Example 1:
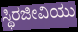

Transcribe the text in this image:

ಸ್ಥಿರಜೀವಿಯು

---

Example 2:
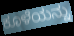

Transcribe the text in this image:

ಕೂಳೆಯನ್ನು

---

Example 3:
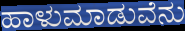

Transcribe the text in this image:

ಹಾಳುಮಾಡುವೆನು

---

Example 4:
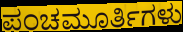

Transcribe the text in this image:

ಪಂಚಮೂರ್ತಿಗಳು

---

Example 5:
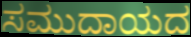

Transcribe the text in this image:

ಸಮುದಾಯದ